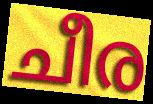
ചീര